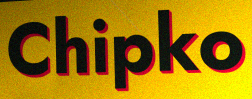
Chipko